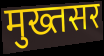
मुख्तसर